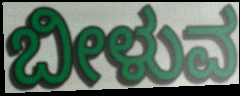
ಬೀಳುವ